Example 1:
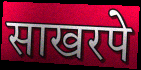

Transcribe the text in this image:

साखरपे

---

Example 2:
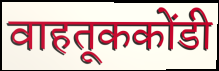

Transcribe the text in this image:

वाहतूककोंडी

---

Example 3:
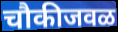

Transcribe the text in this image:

चौकीजवळ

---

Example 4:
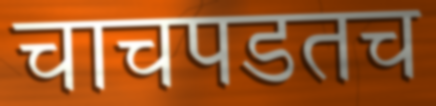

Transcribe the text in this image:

चाचपडतच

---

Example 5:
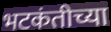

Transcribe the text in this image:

भटकंतीच्या